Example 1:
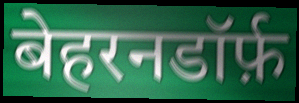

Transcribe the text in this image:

बेहरनडॉर्फ़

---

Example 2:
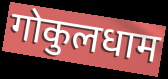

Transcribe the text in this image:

गोकुलधाम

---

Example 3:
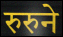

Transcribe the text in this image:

रुरुने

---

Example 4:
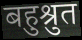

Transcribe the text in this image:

बहुश्रुत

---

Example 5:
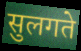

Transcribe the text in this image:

सुलगते